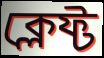
ক্লেফ্ট